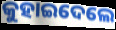
କୁହାଇଦେଲେ